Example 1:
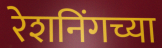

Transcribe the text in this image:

रेशनिंगच्या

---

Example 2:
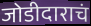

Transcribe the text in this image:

जोडीदाराचं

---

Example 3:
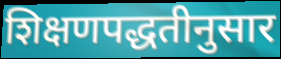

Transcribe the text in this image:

शिक्षणपद्धतीनुसार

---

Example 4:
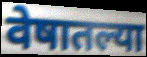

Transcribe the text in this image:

वेषातल्या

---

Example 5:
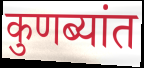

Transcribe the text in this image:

कुणब्यांत